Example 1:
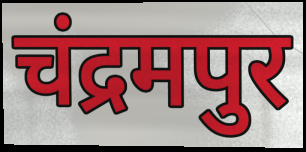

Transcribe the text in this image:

चंद्रमपुर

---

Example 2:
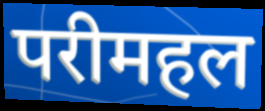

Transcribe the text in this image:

परीमहल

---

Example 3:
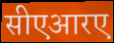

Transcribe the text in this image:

सीएआरए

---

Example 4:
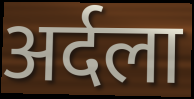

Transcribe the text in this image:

अर्दला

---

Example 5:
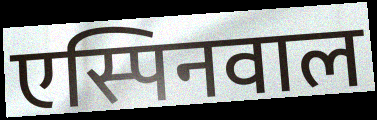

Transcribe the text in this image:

एस्पिनवाल